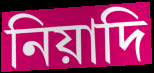
নিয়াদি